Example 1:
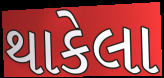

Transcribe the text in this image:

થાકેલા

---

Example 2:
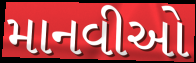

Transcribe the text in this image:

માનવીઓ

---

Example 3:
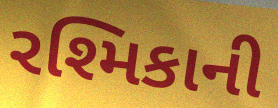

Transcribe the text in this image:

રશ્મિકાની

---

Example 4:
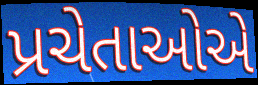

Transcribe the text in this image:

પ્રચેતાઓએ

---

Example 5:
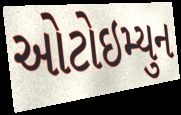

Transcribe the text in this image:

ઓટોઇમ્યુન